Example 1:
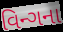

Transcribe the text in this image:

વિન્ગના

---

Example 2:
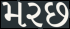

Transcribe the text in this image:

મરછ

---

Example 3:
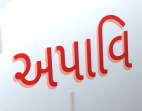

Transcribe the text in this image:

અપાવિ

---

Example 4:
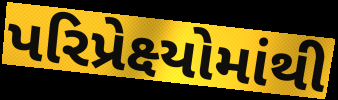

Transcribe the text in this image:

પરિપ્રેક્ષ્યોમાંથી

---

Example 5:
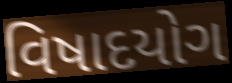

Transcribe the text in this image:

વિષાદયોગ